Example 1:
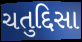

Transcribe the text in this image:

ચતુદ્દિસા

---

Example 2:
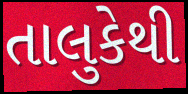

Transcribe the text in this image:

તાલુકેથી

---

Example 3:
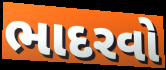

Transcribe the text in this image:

ભાદરવો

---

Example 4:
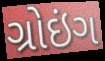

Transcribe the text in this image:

ગ્રોઇંગ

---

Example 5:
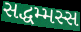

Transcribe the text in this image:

સદ્ધમ્મસ્સ